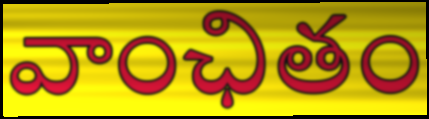
వాంఛితం